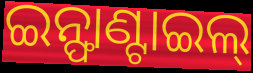
ଇନ୍ଫାଣ୍ଟାଇଲ୍